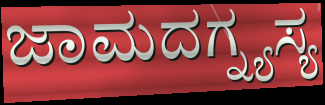
ಜಾಮದಗ್ನ್ಯಸ್ಯ